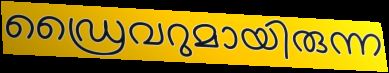
ഡ്രൈവറുമായിരുന്ന